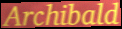
Archibald